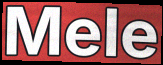
Mele